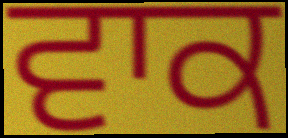
ਵਾਕ